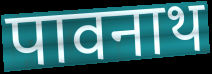
पावनाथ